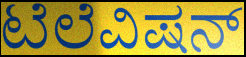
ಟೆಲೆವಿಷನ್